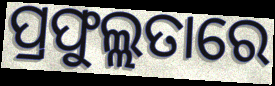
ପ୍ରଫୁଲ୍ଲତାରେ